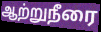
ஆற்றுநீரை